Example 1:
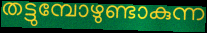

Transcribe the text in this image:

തട്ടുമ്പോഴുണ്ടാകുന്ന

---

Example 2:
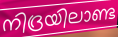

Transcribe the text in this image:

നിദ്രയിലാണ്ട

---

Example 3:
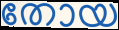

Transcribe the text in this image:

തോയ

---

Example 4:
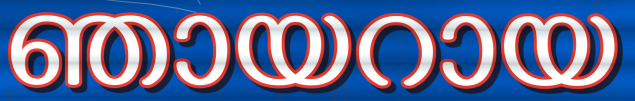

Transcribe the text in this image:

ഞായറായ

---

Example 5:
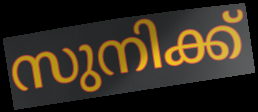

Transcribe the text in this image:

സുനിക്ക്